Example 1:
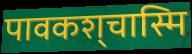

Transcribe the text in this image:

पावकश्चास्मि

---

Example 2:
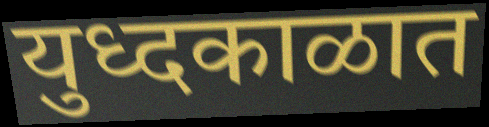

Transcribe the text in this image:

युध्दकाळात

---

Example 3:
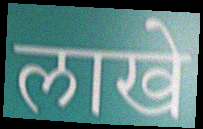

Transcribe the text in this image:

लाखे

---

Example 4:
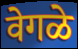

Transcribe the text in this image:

वेगळे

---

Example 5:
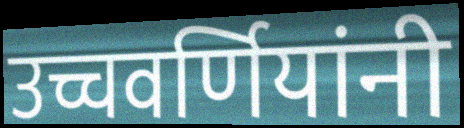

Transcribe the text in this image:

उच्चवर्णियांनी